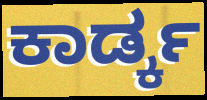
ಕಾರ್ಡ್ಕ